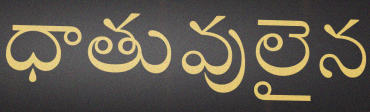
ధాతువులైన